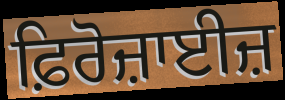
ਫ਼ਿਰੋਜ਼ਾਈਜ਼